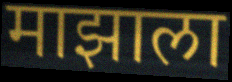
माझाला